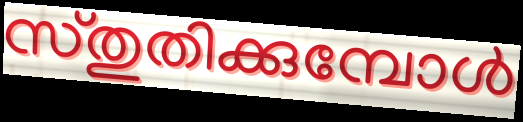
സ്തുതിക്കുമ്പോൾ